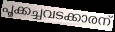
പൂക്കച്ചവടക്കാരന്